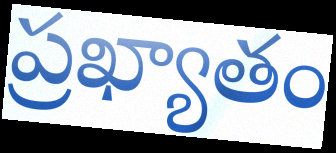
ప్రఖ్యాతం